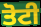
ਤੋਟੀ